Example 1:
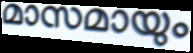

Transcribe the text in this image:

മാസമായും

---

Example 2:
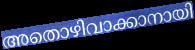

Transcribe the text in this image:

അതൊഴിവാക്കാനായി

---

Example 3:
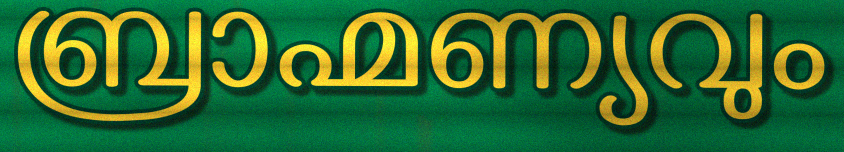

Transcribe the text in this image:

ബ്രാഹ്മണ്യവും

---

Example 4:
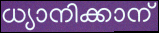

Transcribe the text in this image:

ധ്യാനിക്കാന്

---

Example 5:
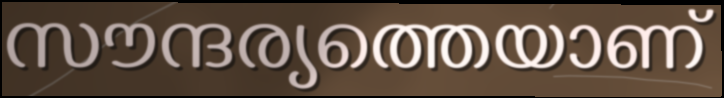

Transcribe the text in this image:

സൗന്ദര്യത്തെയാണ്